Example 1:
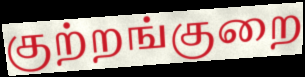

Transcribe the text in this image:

குற்றங்குறை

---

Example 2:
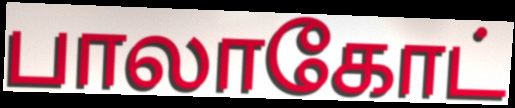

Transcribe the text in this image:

பாலாகோட்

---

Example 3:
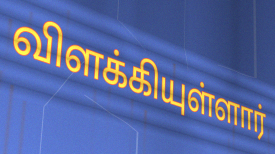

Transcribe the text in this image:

விளக்கியுள்ளார்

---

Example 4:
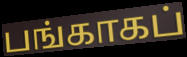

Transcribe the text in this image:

பங்காகப்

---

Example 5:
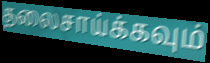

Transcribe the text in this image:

தலைசாய்க்கவும்